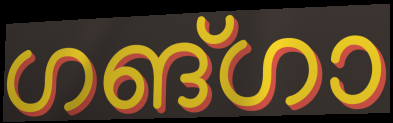
ഗങ്ഗാ